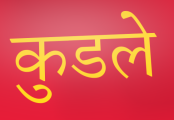
कुडले